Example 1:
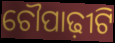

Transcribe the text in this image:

ଚୌପାଢ଼ୀଟି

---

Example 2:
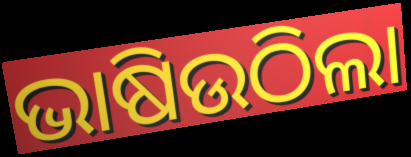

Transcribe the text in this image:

ଭାଷିଉଠିଲା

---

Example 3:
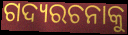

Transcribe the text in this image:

ଗଦ୍ୟରଚନାକୁ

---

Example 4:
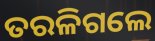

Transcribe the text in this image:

ତରଳିଗଲେ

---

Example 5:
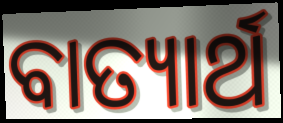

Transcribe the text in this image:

ବାତ୍ୟାର୍ଥ